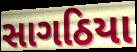
સાગઠિયા